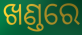
ଖଣ୍ଡରେ